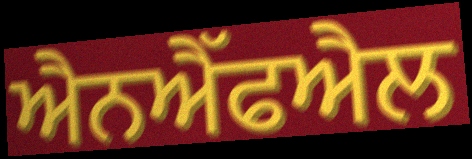
ਐਨਐੱਫਐਲ